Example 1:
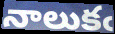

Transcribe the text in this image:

నాలుకఁ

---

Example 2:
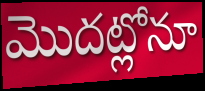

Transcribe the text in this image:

మొదట్లోనూ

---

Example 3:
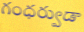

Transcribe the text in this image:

గంధర్వుడా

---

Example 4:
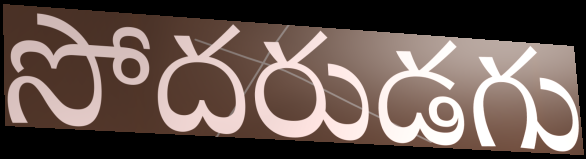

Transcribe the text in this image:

సోదరుడగు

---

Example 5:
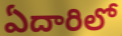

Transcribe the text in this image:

ఏదారిలో